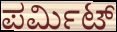
ಪರ್ಮಿಟ್